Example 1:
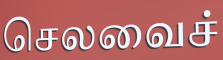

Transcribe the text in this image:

செலவைச்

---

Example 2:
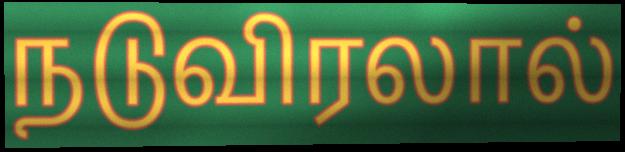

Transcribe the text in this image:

நடுவிரலால்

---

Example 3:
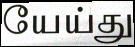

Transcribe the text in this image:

யேய்து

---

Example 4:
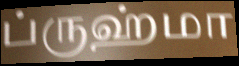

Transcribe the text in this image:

ப்ருஹ்மா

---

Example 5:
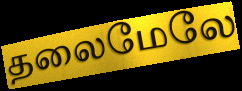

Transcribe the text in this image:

தலைமேலே